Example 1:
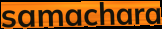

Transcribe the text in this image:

samachara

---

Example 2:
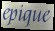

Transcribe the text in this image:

epique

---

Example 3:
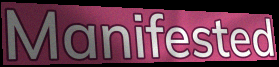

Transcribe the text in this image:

Manifested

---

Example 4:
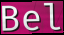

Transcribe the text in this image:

Bel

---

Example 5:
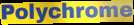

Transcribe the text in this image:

Polychrome